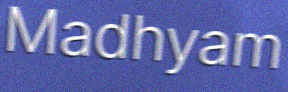
Madhyam